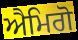
ਐਮਿਗੋ